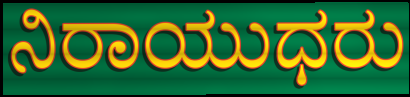
ನಿರಾಯುಧರು